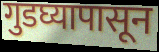
गुडघ्यापासून